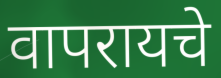
वापरायचे